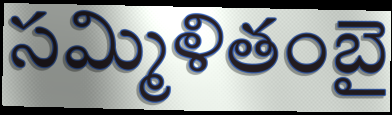
సమ్మిళితంబై